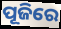
ପୂଜିରେ